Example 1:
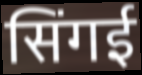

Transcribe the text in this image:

सिंगई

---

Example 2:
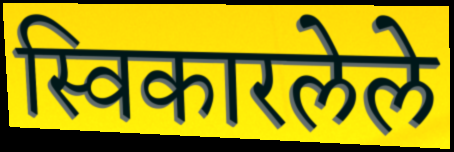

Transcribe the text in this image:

स्विकारलेले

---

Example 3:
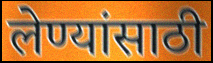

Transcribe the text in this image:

लेण्यांसाठी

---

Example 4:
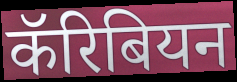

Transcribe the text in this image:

कॅरिबियन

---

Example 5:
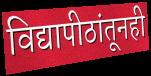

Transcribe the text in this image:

विद्यापीठांतूनही